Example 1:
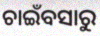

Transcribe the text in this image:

ଚାଇଁବସାରୁ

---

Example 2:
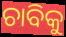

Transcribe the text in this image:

ଚାବିକୁ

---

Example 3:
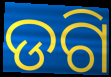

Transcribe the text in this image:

ଡଗି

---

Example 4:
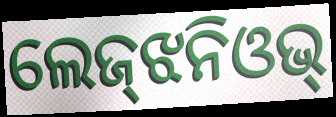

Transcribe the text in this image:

ଲେଜ୍‌ଝନିଓଭ୍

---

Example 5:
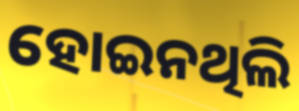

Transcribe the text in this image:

ହୋଇନଥିଲି